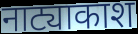
नाट्याकाश